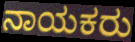
ನಾಯಕರು